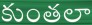
కుంతలా